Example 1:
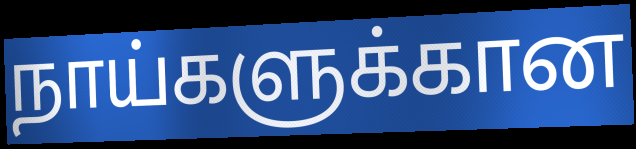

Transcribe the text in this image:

நாய்களுக்கான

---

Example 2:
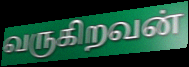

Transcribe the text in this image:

வருகிறவன்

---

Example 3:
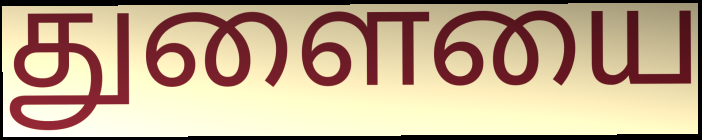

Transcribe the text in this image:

துளையை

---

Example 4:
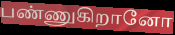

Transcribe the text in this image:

பண்ணுகிறானோ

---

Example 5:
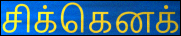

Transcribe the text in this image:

சிக்கெனக்